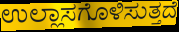
ಉಲ್ಲಾಸಗೊಳಿಸುತ್ತದೆ